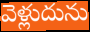
వెళ్లుదును